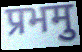
प्रभमु